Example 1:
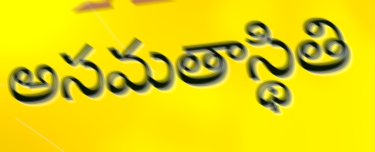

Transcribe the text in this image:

అసమతాస్థితి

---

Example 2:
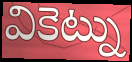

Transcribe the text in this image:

వికెట్ను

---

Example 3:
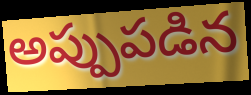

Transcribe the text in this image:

అప్పుపడిన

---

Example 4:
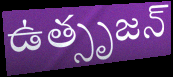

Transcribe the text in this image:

ఉత్సృజన్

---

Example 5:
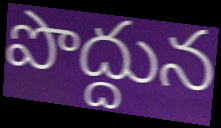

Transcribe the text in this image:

పొద్దున